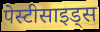
पेस्टीसाइड्स